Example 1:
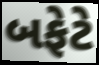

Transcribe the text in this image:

બફેટે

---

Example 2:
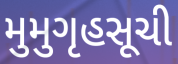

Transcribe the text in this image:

મુમુગૃહસૂચી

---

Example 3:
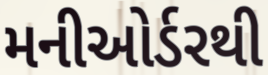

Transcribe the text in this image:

મનીઓર્ડરથી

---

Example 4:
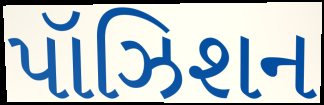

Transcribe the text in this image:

પૉઝિશન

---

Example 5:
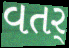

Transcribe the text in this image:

વતર્